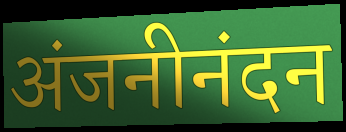
अंजनीनंदन